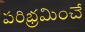
పరిభ్రమించే